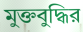
মুক্তবুদ্ধির